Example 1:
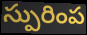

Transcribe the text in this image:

స్పురింప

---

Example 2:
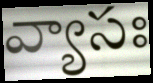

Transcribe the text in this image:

వ్యాసః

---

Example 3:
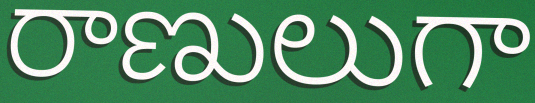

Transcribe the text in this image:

రాణులుగా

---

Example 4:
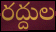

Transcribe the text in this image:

రద్దుల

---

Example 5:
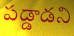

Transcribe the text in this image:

పడ్డాడని